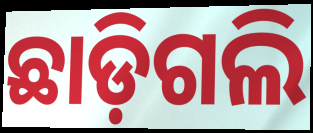
ଛାଡ଼ିଗଲି